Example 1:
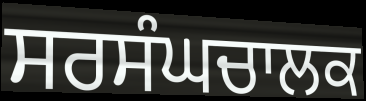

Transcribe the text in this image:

ਸਰਸੰਘਚਾਲਕ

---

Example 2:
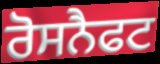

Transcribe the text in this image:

ਰੋਸਨੈਫਟ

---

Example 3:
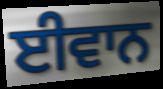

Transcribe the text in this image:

ਈਵਾਨ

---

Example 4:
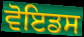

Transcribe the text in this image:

ਵੋਇਡਸ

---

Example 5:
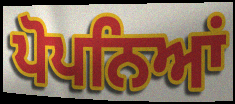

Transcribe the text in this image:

ਪੋਪਨਿਆਂ